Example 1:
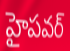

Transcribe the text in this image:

హైపవర్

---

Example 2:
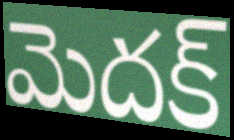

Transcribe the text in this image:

మెదక్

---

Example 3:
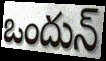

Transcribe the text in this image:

ఒందున్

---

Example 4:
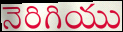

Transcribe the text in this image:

నెరిగియు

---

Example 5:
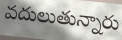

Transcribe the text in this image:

వదులుతున్నారు